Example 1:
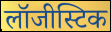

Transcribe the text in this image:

लॉजीस्टिक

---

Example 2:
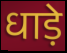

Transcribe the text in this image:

धाड़े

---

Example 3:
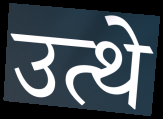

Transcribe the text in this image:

उत्थे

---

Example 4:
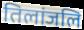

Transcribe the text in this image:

तिलांजलि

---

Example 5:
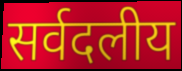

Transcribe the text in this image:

सर्वदलीय